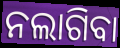
ନଲାଗିବା